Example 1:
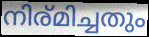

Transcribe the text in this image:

നിര്മിച്ചതും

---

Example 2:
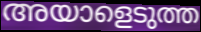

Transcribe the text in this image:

അയാളെടുത്ത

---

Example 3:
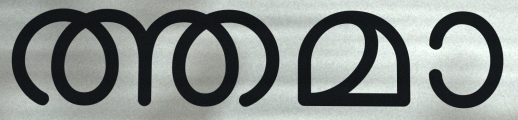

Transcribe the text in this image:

ത്തമാ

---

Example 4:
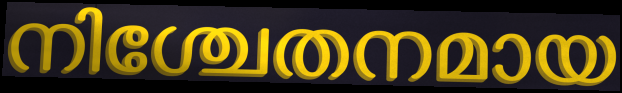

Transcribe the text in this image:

നിശ്ചേതനമായ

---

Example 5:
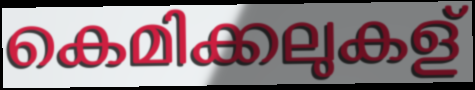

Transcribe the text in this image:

കെമിക്കലുകള്